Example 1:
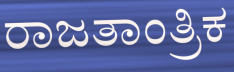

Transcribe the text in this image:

ರಾಜತಾಂತ್ರಿಕ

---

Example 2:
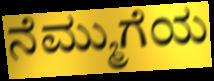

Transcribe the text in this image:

ನೆಮ್ಮುಗೆಯ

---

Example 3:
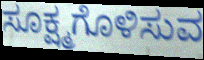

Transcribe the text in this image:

ಸೂಕ್ಷ್ಮಗೊಳಿಸುವ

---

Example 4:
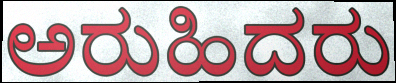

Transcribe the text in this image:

ಅರುಹಿದರು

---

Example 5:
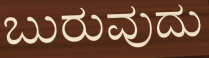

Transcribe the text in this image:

ಬುರುವುದು